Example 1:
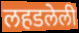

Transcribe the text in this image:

लहडलेली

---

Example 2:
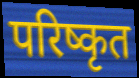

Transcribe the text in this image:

परिष्कृत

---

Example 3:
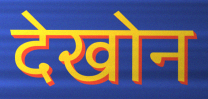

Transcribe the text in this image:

देखोन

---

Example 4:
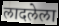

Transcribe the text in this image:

लादलेला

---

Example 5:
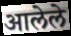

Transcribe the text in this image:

आलेले